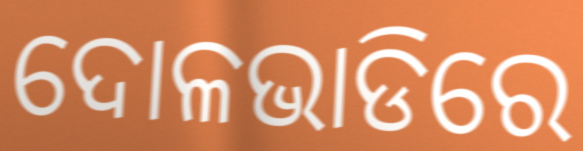
ଦୋଳଭାଡିରେ